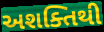
અશક્તિથી